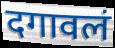
दगावलं